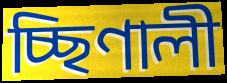
চ্ছিণালী